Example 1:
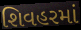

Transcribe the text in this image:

શિવહરમાં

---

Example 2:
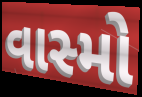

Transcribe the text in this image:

વાસ્મો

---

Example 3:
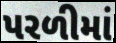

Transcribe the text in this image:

પરળીમાં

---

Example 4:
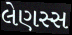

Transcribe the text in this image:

લેણસ્સ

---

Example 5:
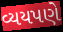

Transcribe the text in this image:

વ્યયપણે